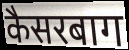
कैसरबाग